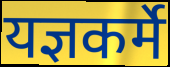
यज्ञकर्मे